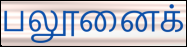
பலூனைக்